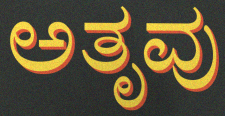
ಅತೃವು